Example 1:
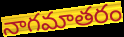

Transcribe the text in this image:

నాగమాతరం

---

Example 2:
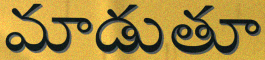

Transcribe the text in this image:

మాడుతూ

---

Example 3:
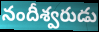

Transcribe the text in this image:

నందీశ్వరుడు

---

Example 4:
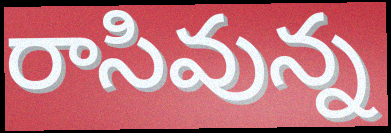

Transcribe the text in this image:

రాసివున్న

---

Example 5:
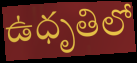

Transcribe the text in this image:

ఉధృతిలో